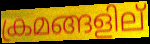
ക്രമങ്ങളില്